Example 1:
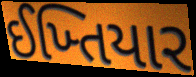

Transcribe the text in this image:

ઈખ્તિયાર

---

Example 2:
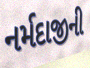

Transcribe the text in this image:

નર્મદાજીની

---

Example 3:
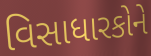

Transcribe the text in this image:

વિસાધારકોને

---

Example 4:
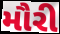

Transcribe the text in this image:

મૌરી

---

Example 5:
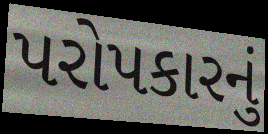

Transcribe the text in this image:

પરોપકારનું